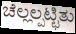
ಚೆಲ್ಲಲ್ಪಟ್ಟಿತು